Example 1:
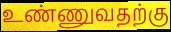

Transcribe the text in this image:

உண்ணுவதற்கு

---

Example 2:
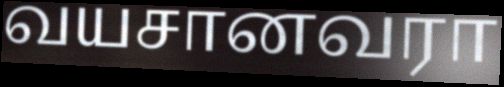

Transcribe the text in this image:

வயசானவரா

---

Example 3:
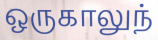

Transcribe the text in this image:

ஒருகாலுந்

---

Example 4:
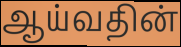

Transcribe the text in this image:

ஆய்வதின்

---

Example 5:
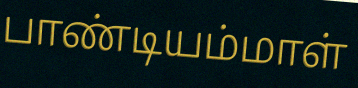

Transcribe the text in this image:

பாண்டியம்மாள்